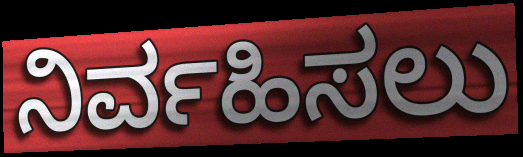
ನಿರ್ವಹಿಸಲು